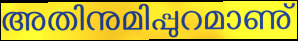
അതിനുമിപ്പുറമാണു്